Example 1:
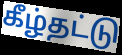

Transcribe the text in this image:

கீழ்தட்டு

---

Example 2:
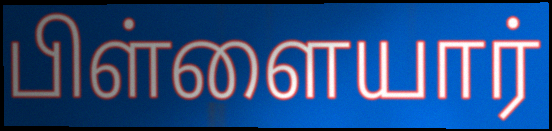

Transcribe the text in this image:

பிள்ளையார்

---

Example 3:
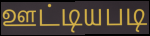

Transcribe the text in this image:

ஊட்டியபடி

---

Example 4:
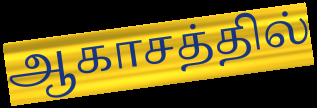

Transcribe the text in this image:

ஆகாசத்தில்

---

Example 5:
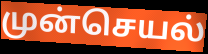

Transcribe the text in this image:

முன்செயல்